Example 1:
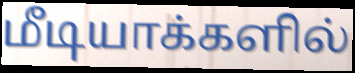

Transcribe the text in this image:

மீடியாக்களில்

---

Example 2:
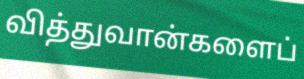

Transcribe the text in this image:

வித்துவான்களைப்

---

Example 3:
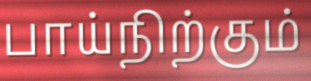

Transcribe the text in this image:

பாய்நிற்கும்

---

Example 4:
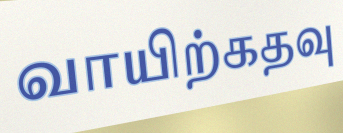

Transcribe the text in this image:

வாயிற்கதவு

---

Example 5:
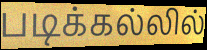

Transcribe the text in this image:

படிக்கல்லில்